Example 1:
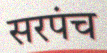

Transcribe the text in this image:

सरपंच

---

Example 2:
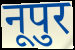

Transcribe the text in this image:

नूपुर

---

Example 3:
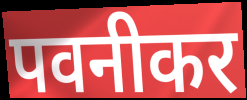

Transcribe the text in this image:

पवनीकर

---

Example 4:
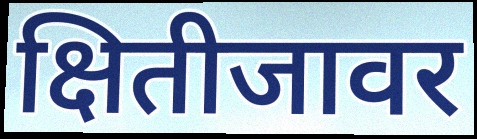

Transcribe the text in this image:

क्षितीजावर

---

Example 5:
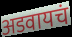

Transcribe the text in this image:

अडवायचं